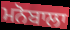
ਮਨੋਬਾਲਾ